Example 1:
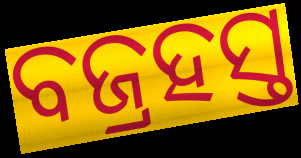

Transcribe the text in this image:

ବଜ୍ରହସ୍ତ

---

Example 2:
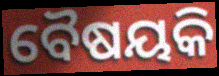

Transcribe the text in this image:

ବୈଷୟକି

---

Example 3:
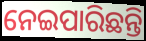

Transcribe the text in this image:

ନେଇପାରିଛନ୍ତି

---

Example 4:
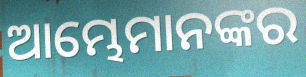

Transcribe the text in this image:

ଆମ୍ଭେମାନଙ୍କର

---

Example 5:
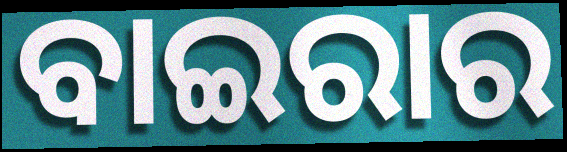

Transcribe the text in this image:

ବାଇରାର